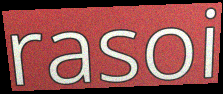
rasoi